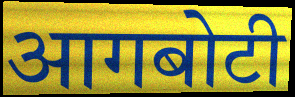
आगबोटी